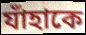
যাঁহাকে